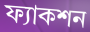
ফ্যাকশন